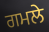
ਗਮਲੇ